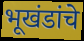
भूखंडांचे